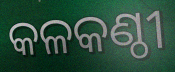
କଳକଣ୍ଠୀ